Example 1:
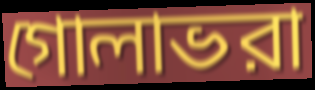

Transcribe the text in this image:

গোলাভরা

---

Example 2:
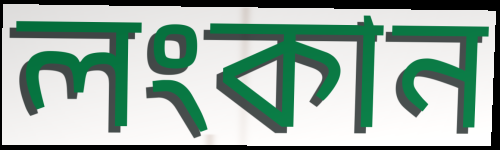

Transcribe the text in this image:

লংকান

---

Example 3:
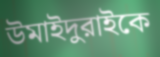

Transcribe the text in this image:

উমাইদুরাইকে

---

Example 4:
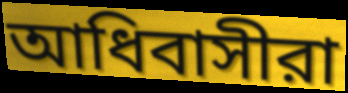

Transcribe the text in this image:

আধিবাসীরা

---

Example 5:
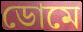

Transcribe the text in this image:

ডোমে